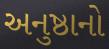
અનુષ્ઠાનો